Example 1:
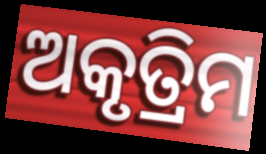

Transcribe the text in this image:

ଅକୃତ୍ରିମ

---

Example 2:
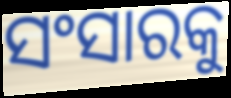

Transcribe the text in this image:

ସଂସାରକୁ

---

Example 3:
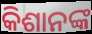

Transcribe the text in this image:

କିଶାନଙ୍କ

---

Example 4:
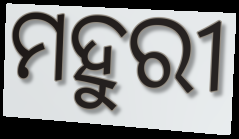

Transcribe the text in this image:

ମହୁରୀ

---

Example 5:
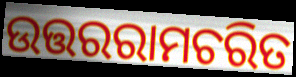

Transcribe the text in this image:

ଉତ୍ତରରାମଚରିତ